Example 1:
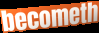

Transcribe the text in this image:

becometh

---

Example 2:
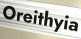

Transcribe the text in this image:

Oreithyia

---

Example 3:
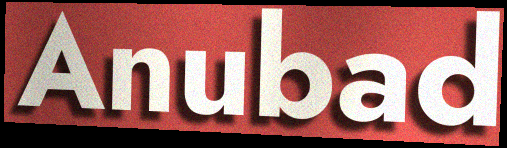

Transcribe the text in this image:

Anubad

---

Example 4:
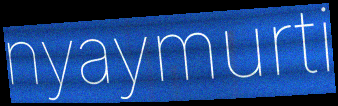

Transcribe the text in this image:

nyaymurti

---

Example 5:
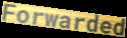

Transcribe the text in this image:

Forwarded